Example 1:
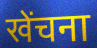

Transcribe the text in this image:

खेंचना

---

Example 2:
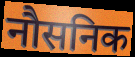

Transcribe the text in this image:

नौसनिक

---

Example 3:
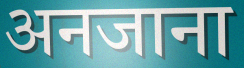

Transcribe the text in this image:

अनजाना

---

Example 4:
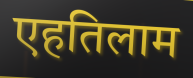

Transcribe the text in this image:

एहतिलाम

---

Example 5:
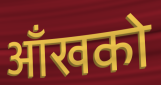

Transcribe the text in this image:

आँखको